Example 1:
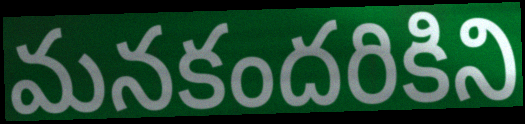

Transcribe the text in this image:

మనకందరికిని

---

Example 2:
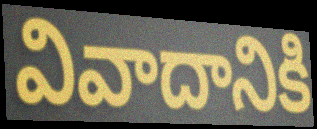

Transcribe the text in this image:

వివాదానికి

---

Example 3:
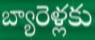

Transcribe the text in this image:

బ్యారెళ్లకు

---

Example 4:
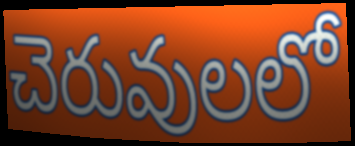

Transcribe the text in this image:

చెరువులలో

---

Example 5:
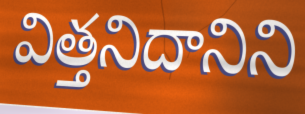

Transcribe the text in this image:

విత్తనిదానిని